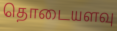
தொடையளவு